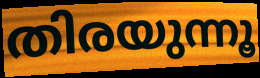
തിരയുന്നൂ